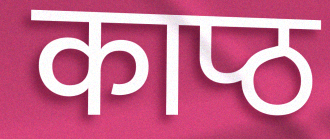
काप्ठ